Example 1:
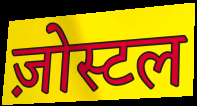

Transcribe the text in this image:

ज़ोस्टल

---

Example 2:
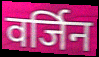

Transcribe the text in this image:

वर्जिन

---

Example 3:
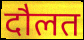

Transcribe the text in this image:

दौलत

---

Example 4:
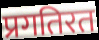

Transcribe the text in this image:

प्रगतिरत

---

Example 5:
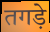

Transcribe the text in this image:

तगड़े